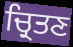
ਚ੍ਰਿਤਣ